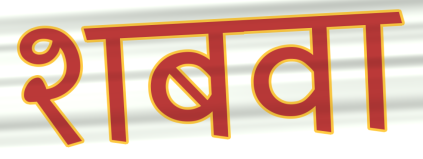
शबवा